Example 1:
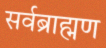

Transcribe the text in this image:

सर्वब्राह्मण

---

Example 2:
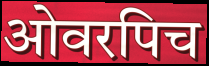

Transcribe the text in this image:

ओवरपिच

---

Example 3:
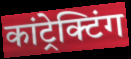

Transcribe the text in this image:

कांट्रेक्टिंग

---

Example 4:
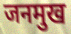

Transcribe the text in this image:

जनमुख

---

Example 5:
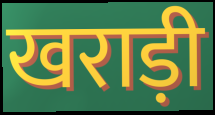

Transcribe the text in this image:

खराड़ी